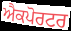
ਐਕਪੋਰਟਰ